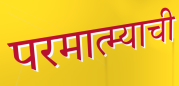
परमात्म्याची